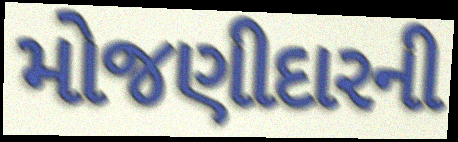
મોજણીદારની